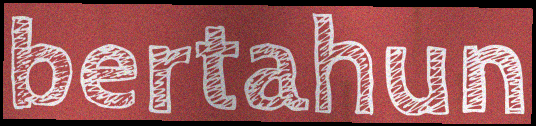
bertahun